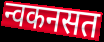
न्वकनसत